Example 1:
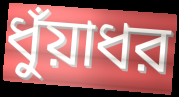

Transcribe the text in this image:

ধুঁয়াধর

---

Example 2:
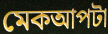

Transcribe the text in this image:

মেকআপটা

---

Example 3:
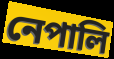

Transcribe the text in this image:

নেপালি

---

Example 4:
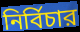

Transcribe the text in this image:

নির্বিচার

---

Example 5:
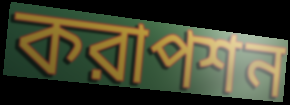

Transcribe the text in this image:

করাপশন